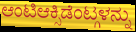
ಆಂಟಿಆಕ್ಸಿಡೆಂಟ್ಗಳನ್ನು